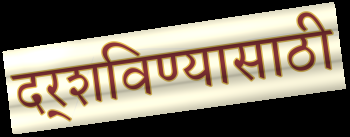
दर्शविण्यासाठी